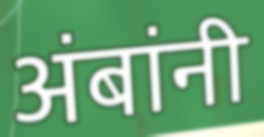
अंबांनी